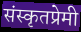
संस्कृतप्रेमी